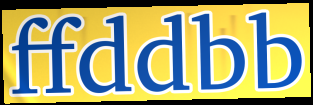
ffddbb